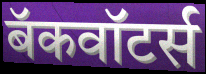
बॅकवॉटर्स